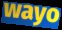
wayo